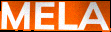
MELA